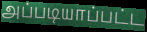
அப்படியாப்பட்ட